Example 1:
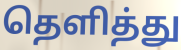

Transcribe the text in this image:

தெளித்து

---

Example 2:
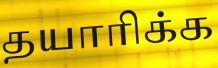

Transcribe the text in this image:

தயாரிக்க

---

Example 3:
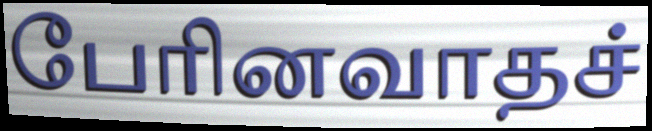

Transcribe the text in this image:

பேரினவாதச்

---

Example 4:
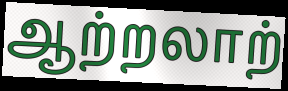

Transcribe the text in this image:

ஆற்றலாற்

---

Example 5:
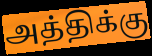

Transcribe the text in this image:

அத்திக்கு